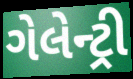
ગેલેન્ટ્રી